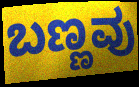
ಬಣ್ಣವು